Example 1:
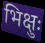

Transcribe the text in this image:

भिक्षुः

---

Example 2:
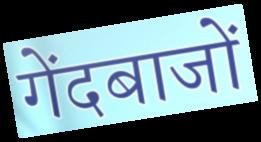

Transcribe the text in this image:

गेंदबाजों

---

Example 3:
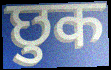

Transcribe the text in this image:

छुक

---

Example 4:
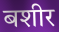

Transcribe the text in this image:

बशीर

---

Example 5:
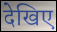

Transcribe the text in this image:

देखिए